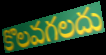
కొలవగలదు